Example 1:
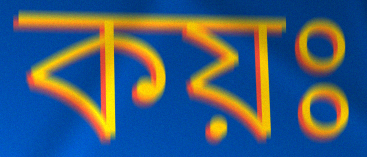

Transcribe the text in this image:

কয়ঃ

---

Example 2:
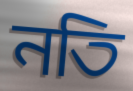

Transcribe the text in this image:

নতি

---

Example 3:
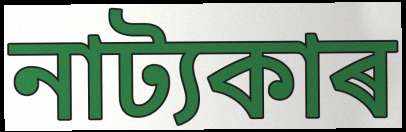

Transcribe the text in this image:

নাট্যকাৰ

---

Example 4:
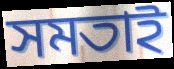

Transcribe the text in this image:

সমতাই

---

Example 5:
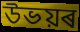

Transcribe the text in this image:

উভয়ৰ